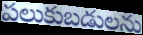
పలుకుబడులను